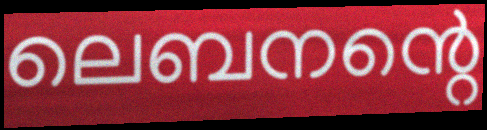
ലെബനന്റെ